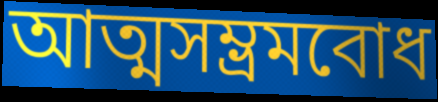
আত্মসম্ভ্রমবোধ